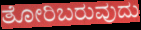
ತೋರಿಬರುವುದು